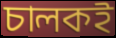
চালকই